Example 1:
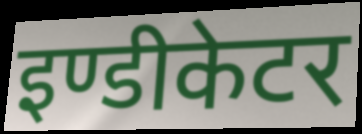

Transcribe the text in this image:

इण्डीकेटर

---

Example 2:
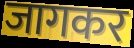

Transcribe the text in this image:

जागकर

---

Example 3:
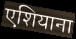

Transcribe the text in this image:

एशियाना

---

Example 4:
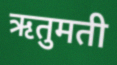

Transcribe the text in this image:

ऋतुमती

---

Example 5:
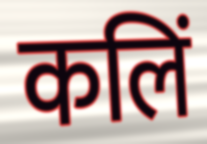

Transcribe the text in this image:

कलिं